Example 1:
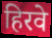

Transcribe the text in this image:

हिरवे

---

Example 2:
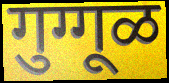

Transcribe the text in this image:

गुग्गूळ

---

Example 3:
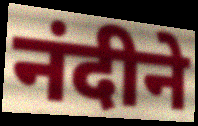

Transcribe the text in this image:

नंदीने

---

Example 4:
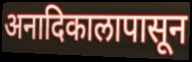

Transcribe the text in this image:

अनादिकालापासून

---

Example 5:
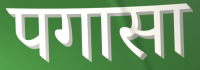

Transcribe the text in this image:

पगासा